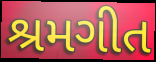
શ્રમગીત